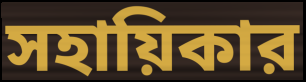
সহায়িকার